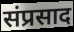
संप्रसाद